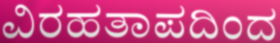
ವಿರಹತಾಪದಿಂದ